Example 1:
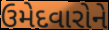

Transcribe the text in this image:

ઉમેદવારોને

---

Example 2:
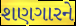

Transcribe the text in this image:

શણગારને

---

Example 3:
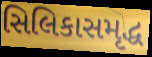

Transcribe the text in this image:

સિલિકાસમૃદ્ધ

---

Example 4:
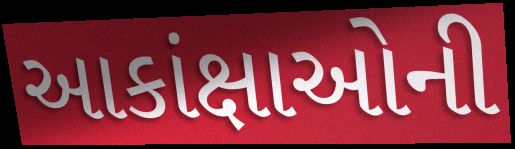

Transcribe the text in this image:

આકાંક્ષાઓની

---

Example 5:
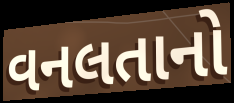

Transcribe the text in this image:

વનલતાનો